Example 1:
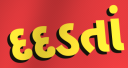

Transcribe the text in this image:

દદડતાં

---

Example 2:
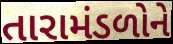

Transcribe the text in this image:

તારામંડળોને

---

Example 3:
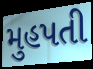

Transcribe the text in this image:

મુહપતી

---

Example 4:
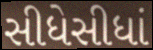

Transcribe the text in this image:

સીધેસીધાં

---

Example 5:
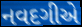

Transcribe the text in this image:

નવદગીએ